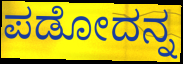
ಪಡೋದನ್ನ